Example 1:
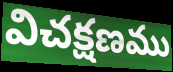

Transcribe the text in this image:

విచక్షణము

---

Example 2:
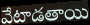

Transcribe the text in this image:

వేటాడతాయి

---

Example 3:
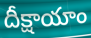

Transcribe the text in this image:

దీక్షాయాం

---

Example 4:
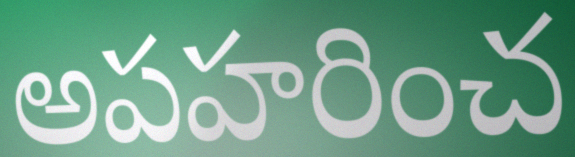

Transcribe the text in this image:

అపహరించ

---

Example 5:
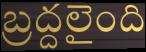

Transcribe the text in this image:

బ్రద్దలైంది